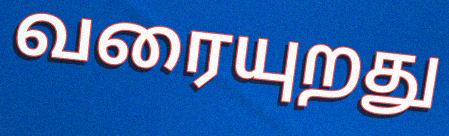
வரையுறது